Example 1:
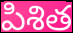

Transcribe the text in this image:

పిశిత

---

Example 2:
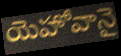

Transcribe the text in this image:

యెహోవానై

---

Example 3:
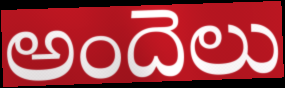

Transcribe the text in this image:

అందెలు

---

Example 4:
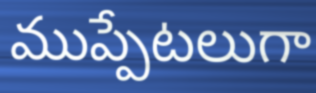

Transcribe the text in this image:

ముప్పేటలుగా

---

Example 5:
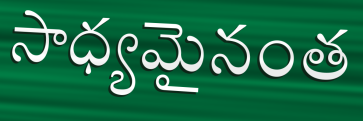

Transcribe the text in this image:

సాధ్యమైనంత